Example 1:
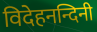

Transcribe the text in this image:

विदेहनन्दिनी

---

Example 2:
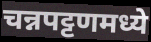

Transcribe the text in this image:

चन्नपट्टणमध्ये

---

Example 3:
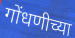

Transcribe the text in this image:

गोंधणीच्या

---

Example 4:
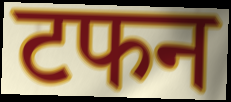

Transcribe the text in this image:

टफन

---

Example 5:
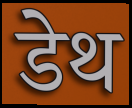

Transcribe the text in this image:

डेथ